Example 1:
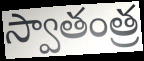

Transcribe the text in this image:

స్వాతంత్ర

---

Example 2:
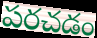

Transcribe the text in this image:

పరచడం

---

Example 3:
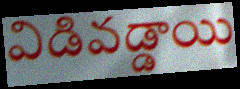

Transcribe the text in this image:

విడివడ్డాయి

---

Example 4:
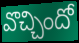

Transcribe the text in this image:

వొచ్చిందో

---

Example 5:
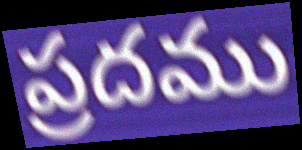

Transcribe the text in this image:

ప్రదము